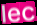
lec